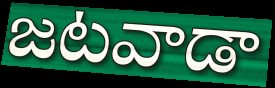
జటవాడా